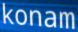
konam